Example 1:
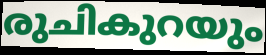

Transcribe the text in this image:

രുചികുറയും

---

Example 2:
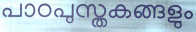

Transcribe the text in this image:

പാഠപുസ്തകങ്ങളും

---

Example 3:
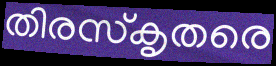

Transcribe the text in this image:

തിരസ്കൃതരെ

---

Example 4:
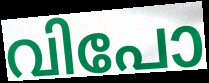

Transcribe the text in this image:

വിപോ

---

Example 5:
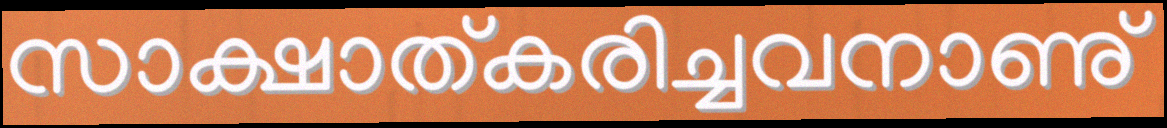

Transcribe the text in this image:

സാക്ഷാത്കരിച്ചവനാണു്